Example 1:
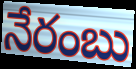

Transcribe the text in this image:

నేరంబు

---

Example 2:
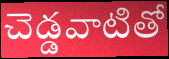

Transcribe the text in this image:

చెడ్డవాటితో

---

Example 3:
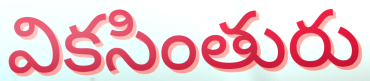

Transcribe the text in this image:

వికసింతురు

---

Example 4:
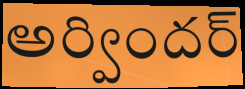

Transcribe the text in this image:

అర్విందర్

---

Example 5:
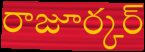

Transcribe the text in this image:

రాజూర్కర్